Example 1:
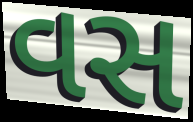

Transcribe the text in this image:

વસ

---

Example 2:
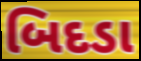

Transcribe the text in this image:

બિદડા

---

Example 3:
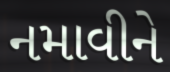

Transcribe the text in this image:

નમાવીને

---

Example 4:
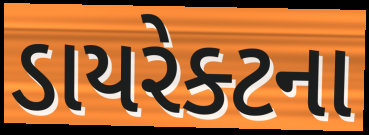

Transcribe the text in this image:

ડાયરેક્ટના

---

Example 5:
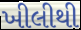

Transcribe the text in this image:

ખીલીથી